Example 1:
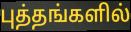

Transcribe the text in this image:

புத்தங்களில்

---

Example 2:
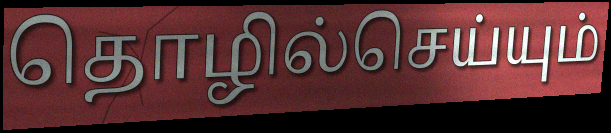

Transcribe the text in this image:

தொழில்செய்யும்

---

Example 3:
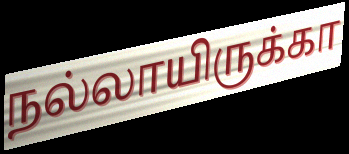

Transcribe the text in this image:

நல்லாயிருக்கா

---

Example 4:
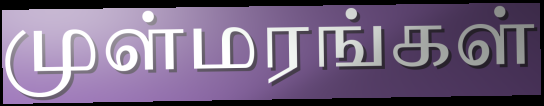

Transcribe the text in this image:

முள்மரங்கள்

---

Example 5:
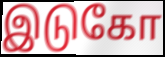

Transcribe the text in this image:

இடுகோ